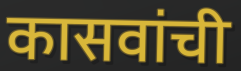
कासवांची